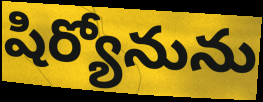
షిర్యోనును